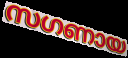
സഗണായ